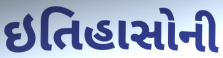
ઇતિહાસોની